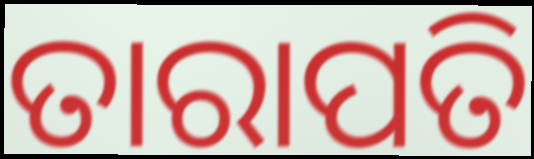
ତାରାପତି